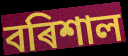
বৰিশাল